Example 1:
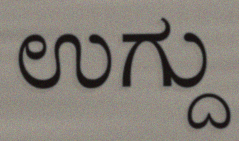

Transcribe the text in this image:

ಉಗ್ದು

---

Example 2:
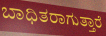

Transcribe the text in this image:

ಬಾಧಿತರಾಗುತ್ತಾರೆ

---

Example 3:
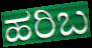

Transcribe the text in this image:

ಹರಿಬ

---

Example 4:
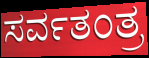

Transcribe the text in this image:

ಸರ್ವತಂತ್ರ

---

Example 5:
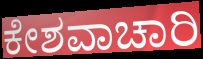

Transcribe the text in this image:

ಕೇಶವಾಚಾರಿ